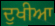
ਦੁਖੀਆ